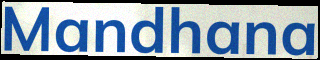
Mandhana